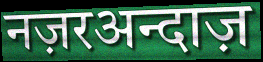
नज़रअन्दाज़